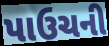
પાઉચની